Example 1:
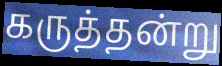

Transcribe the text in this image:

கருத்தன்று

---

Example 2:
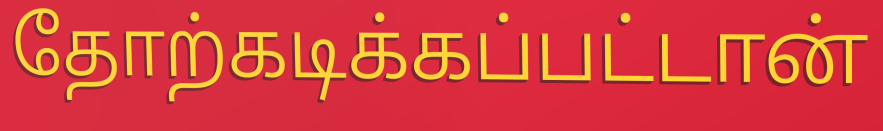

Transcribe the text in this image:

தோற்கடிக்கப்பட்டான்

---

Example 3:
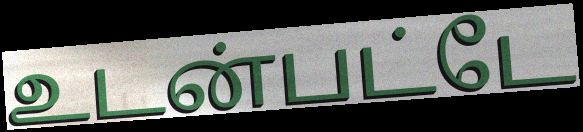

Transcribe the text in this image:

உடன்பட்டே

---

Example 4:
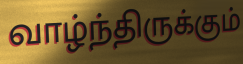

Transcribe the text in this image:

வாழ்ந்திருக்கும்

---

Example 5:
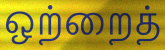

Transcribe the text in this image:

ஒற்றைத்